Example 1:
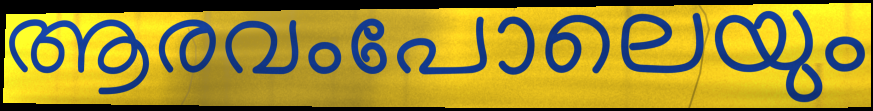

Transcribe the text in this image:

ആരവംപോലെയും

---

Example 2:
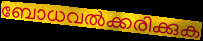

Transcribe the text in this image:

ബോധവൽക്കരിക്കുക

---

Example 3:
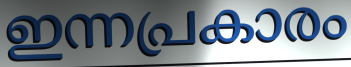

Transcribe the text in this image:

ഇന്നപ്രകാരം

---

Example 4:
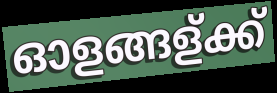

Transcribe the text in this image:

ഓളങ്ങള്ക്ക്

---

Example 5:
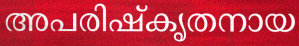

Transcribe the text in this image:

അപരിഷ്കൃതനായ